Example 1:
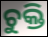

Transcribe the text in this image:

ଚୁକ୍ତି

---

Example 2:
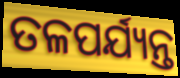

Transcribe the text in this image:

ତଳପର୍ଯ୍ୟନ୍ତ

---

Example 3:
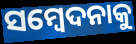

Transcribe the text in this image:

ସମ୍ବେଦନାକୁ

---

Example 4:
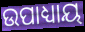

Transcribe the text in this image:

ଉପାଧ୍ୟାୟ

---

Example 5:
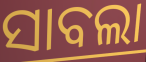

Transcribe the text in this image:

ସାବଲା